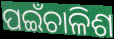
ପଇଁଚାଳିଶ